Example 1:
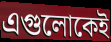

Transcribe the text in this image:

এগুলোকেই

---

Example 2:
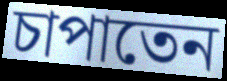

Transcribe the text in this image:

চাপাতেন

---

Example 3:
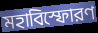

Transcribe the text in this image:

মহাবিস্ফোরণ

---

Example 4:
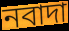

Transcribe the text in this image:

নবাদা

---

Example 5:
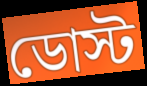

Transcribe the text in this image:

ডোস্ট